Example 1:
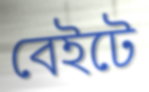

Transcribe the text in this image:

বেইটে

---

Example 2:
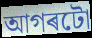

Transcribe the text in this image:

আগৰটো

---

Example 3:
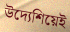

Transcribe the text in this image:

উদ্যেশিয়েই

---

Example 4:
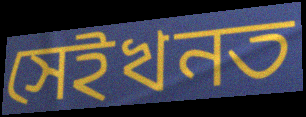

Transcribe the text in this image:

সেইখনত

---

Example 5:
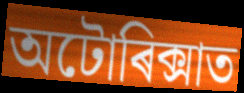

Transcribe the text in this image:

অটোৰিক্সাত